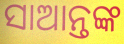
ସାଆନ୍ତଙ୍କ